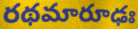
రథమారూఢః